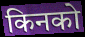
किनको